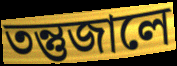
তন্তুজালে